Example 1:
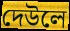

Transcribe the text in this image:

দেউলে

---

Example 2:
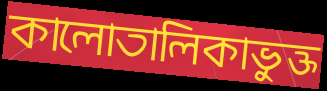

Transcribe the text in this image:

কালোতালিকাভুক্ত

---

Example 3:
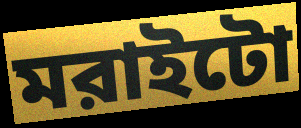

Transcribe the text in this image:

মরাইটো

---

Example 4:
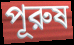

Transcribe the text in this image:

পূরুষ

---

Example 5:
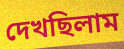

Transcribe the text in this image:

দেখছিলাম